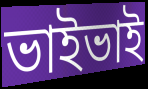
ভাইভাই